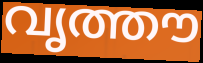
വൃത്തൗ